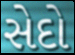
સેદો